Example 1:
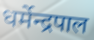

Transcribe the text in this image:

धर्मेन्द्रपाल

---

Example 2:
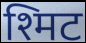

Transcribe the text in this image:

श्मिट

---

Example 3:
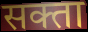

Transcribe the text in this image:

सक्‍ता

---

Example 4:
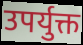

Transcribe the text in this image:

उपर्युक्त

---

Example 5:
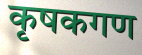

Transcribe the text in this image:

कृषकगण